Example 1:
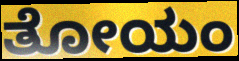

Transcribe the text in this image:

ತೋಯಂ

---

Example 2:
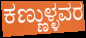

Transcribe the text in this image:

ಕಣ್ಣುಳ್ಳವರ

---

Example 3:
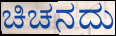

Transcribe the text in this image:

ಚಿಚನದು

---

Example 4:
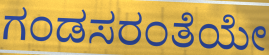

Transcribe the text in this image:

ಗಂಡಸರಂತೆಯೇ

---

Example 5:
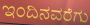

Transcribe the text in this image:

ಇಂದಿನವರೆಗು